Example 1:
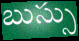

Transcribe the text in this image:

బుస్సు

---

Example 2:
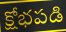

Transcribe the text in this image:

క్షోభపడి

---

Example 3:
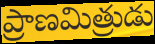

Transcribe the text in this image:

ప్రాణమిత్రుడు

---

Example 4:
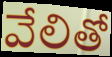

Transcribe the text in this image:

వేలితో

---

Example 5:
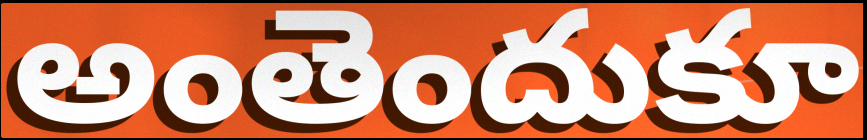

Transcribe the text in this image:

అంతెందుకూ